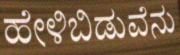
ಹೇಳಿಬಿಡುವೆನು